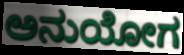
ಅನುಯೋಗ